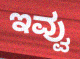
ಇವ್ವು